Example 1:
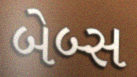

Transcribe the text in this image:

બેબ્સ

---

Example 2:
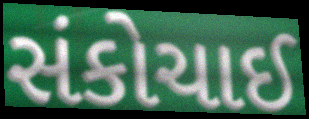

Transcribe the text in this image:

સંકોચાઈ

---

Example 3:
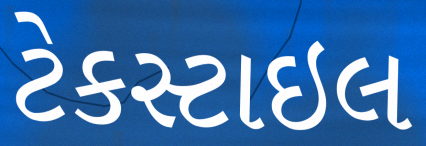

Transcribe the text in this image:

ટેકસ્ટાઇલ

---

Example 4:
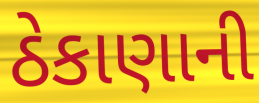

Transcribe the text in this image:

ઠેકાણાની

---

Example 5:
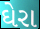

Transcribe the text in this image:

ઘેરા